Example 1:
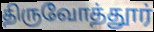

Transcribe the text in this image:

திருவோத்தூர்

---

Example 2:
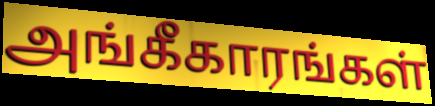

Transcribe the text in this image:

அங்கீகாரங்கள்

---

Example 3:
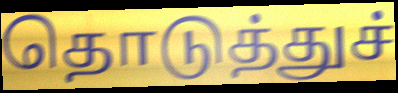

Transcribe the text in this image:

தொடுத்துச்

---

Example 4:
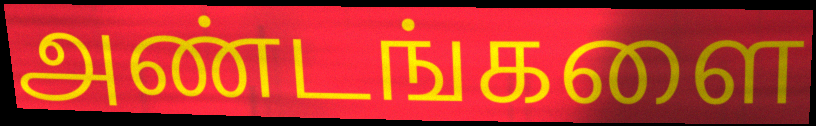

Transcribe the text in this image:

அண்டங்களை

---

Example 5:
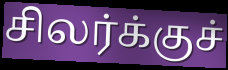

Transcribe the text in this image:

சிலர்க்குச்